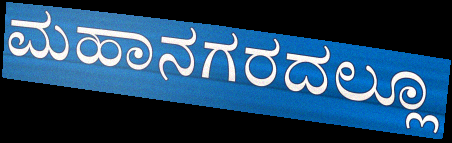
ಮಹಾನಗರದಲ್ಲೂ